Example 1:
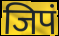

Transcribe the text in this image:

जिपं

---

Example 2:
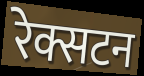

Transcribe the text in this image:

रेक्सटन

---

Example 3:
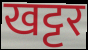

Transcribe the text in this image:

खट्टर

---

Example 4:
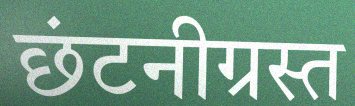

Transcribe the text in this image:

छंटनीग्रस्त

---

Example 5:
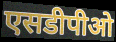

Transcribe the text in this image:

एसडीपीओ